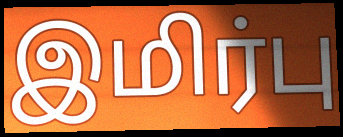
இமிர்பு